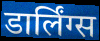
डार्लिंग्स